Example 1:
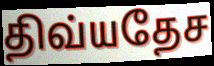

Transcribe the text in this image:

திவ்யதேச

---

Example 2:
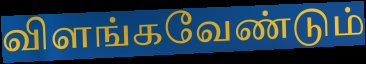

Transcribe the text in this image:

விளங்கவேண்டும்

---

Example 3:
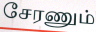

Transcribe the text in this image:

சேரணும்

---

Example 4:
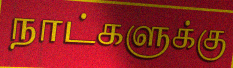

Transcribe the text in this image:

நாட்களுக்கு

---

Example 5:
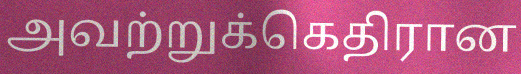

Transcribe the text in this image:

அவற்றுக்கெதிரான